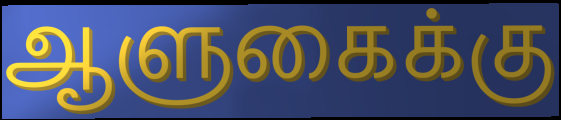
ஆளுகைக்கு